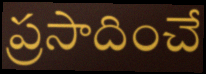
ప్రసాదించే